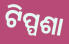
ଟିପ୍ପଶା